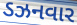
ડઝનવાર